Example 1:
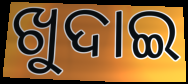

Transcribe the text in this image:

ଖୁଦାଇ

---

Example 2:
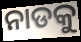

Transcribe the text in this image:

ନାଡକୁ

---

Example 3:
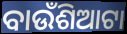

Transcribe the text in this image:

ବାଉଁଶିଆଟା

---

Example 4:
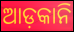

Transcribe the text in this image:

ଆଡ଼କାନି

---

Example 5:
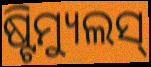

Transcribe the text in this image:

ଷ୍ଟିମ୍ୟୁଲସ୍